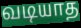
வடியாத